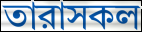
তারাসকল